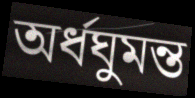
অর্ধঘুমন্ত